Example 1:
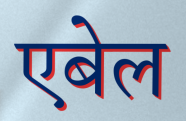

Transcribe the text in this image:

एबेल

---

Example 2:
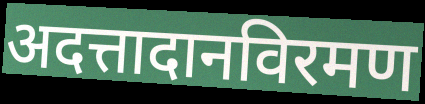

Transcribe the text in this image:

अदत्तादानविरमण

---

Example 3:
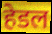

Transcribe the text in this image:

हेडल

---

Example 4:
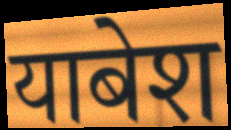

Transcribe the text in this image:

याबेश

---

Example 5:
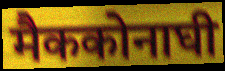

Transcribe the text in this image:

मैककोनाघी